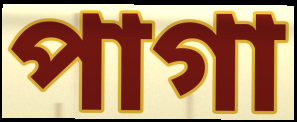
পাগা